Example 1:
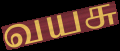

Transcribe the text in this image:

வயசு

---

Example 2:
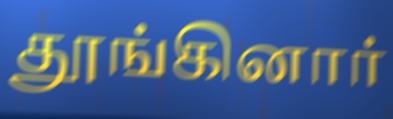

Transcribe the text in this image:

தூங்கினார்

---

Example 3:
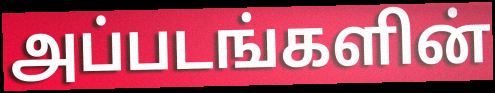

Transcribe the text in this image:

அப்படங்களின்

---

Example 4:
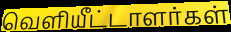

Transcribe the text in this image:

வெளியீட்டாளர்கள்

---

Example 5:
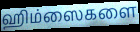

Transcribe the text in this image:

ஹிம்ஸைகளை